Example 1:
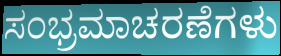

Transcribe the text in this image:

ಸಂಭ್ರಮಾಚರಣೆಗಳು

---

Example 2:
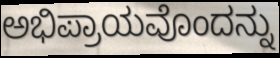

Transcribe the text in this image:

ಅಭಿಪ್ರಾಯವೊಂದನ್ನು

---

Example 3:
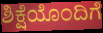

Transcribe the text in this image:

ಶಿಕ್ಷೆಯೊಂದಿಗೆ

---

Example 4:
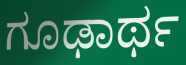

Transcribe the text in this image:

ಗೂಢಾರ್ಥ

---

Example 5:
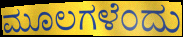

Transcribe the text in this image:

ಮೂಲಗಳೆಂದು